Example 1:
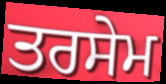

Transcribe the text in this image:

ਤਰਸੇਮ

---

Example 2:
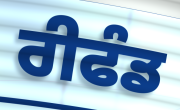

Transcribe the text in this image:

ਰੀਫੰਡ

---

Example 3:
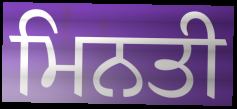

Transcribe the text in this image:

ਮਿਨਤੀ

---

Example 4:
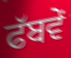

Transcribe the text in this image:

ਫੱਬਵੇਂ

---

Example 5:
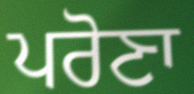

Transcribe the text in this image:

ਪਰੋਣਾ